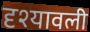
दृश्यावली